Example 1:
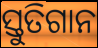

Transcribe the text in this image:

ସ୍ତୁତିଗାନ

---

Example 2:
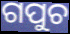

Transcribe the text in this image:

ଗପୁଚ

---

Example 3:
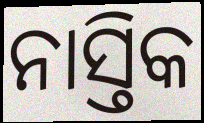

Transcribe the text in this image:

ନାସ୍ତିକ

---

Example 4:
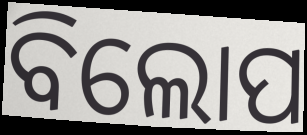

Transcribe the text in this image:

ବିଲୋପ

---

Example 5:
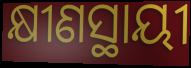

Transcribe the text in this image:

କ୍ଷୀଣସ୍ଥାୟୀ